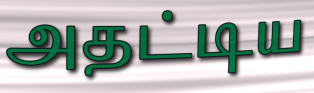
அதட்டிய